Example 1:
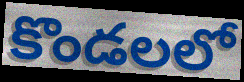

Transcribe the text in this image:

కొండలలో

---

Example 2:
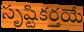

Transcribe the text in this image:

సృష్టికర్తయే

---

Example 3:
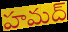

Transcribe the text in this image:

హమద్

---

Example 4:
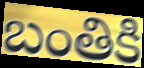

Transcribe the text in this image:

బంతికి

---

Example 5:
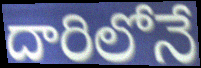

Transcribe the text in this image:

దారిలోనే